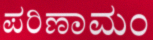
ಪರಿಣಾಮಂ